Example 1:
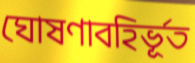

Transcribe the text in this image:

ঘোষণাবহির্ভূত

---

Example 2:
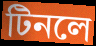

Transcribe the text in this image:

টিনলে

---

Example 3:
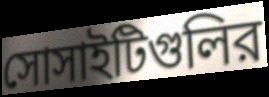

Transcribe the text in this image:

সোসাইটিগুলির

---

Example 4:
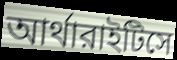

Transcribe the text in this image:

আর্থারাইটিসে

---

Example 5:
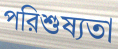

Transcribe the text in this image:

পরিশুষ্যতা